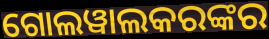
ଗୋଲୱାଲକରଙ୍କର